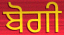
ਬੋਗੀ